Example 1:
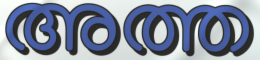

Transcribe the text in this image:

അത്ത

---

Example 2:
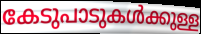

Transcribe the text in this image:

കേടുപാടുകൾക്കുള്ള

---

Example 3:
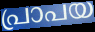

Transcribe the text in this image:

പ്രാപയ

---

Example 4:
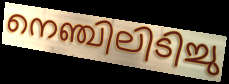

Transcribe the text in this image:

നെഞ്ചിലിടിച്ചു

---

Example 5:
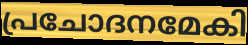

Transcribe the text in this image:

പ്രചോദനമേകി